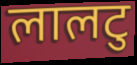
लालटु